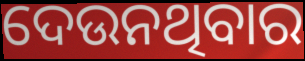
ଦେଉନଥିବାର